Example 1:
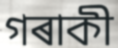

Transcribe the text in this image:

গৰাকী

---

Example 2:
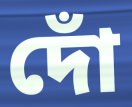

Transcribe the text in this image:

দোঁ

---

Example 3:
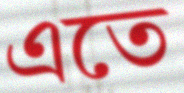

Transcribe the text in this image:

এতে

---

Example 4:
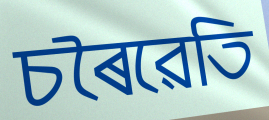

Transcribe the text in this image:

চৰৈৱেতি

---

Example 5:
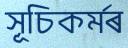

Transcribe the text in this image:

সূচিকৰ্মৰ